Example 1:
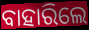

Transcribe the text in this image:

ବାହାରିଲେ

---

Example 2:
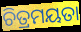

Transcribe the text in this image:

ଚିତ୍ରମୟତା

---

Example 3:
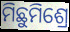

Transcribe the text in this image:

ମିଛୁମିଶ୍ରେ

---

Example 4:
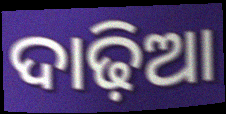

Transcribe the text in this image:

ଦାଢ଼ିଆ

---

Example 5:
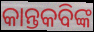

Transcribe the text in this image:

କାନ୍ତକବିଙ୍କ